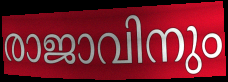
രാജാവിനും